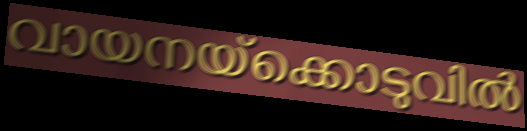
വായനയ്‌ക്കൊടുവിൽ